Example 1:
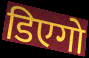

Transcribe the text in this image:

डिएगो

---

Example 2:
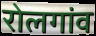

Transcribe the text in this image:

रोलगांव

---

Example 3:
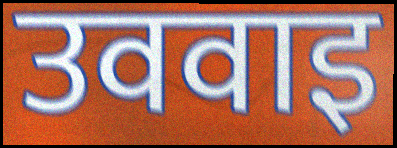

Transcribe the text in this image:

उववाइ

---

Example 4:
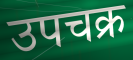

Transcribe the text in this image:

उपचक्र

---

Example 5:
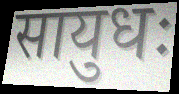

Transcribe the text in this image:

सायुधः